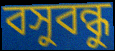
বসুবন্ধু